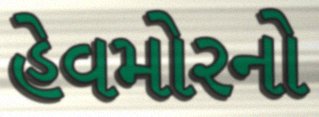
હેવમોરનો